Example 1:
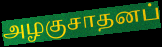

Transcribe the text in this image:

அழகுசாதனப்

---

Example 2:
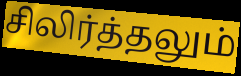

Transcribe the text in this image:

சிலிர்த்தலும்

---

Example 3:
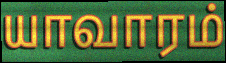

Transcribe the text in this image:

யாவாரம்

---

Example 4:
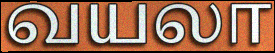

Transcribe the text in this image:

வயலா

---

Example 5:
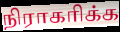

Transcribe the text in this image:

நிராகரிக்க